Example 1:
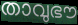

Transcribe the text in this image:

താവുഭൗ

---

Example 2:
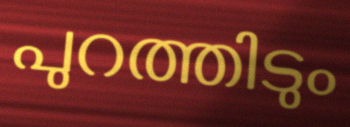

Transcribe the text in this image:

പുറത്തിടും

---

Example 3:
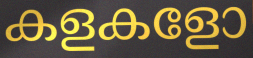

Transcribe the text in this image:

കളകളോ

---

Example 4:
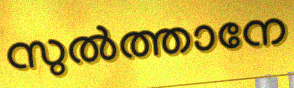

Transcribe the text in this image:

സുൽത്താനേ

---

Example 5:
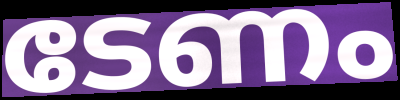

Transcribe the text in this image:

ടേണം